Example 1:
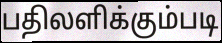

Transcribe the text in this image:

பதிலளிக்கும்படி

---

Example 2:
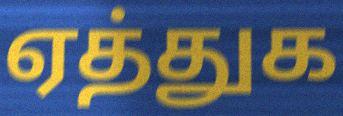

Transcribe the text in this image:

ஏத்துக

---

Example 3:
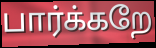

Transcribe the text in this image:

பார்க்கறே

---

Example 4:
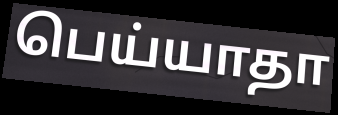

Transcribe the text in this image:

பெய்யாதா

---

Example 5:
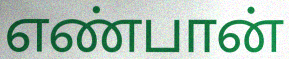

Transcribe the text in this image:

எண்பான்